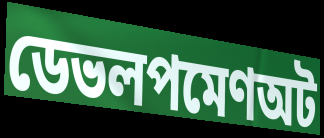
ডেভলপমেণঅট